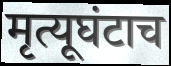
मृत्यूघंटाच